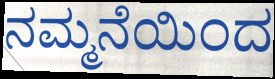
ನಮ್ಮನೆಯಿಂದ